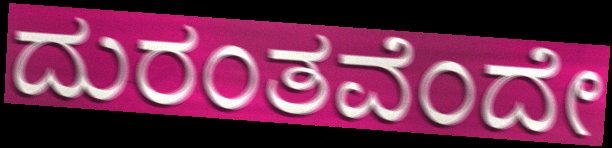
ದುರಂತವೆಂದೇ